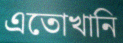
এতোখানি